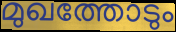
മുഖത്തോടും